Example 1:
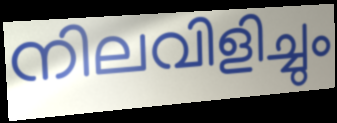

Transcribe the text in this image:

നിലവിളിച്ചും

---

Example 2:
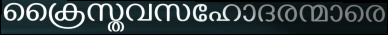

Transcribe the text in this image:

ക്രൈസ്തവസഹോദരന്മാരെ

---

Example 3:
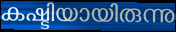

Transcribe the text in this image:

കഷ്ടിയായിരുന്നു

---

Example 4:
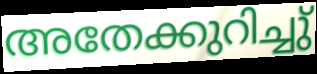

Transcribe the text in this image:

അതേക്കുറിച്ചു്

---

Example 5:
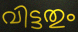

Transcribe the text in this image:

വിട്ടതും